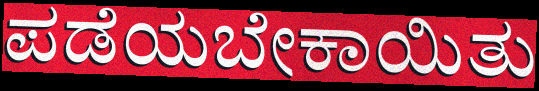
ಪಡೆಯಬೇಕಾಯಿತು